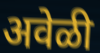
अवेळी